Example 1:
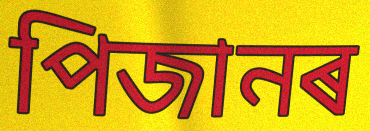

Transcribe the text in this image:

পিজানৰ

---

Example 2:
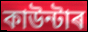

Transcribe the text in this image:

কাউন্টাৰ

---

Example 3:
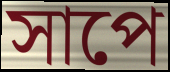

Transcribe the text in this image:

সাপে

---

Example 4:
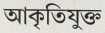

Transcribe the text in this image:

আকৃতিযুক্ত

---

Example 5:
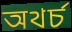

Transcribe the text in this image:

অথৰ্চ